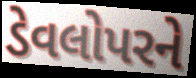
ડેવલોપરને